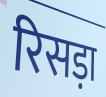
रिसड़ा